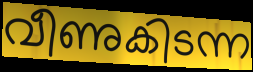
വീണുകിടന്ന